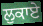
ਲੁਕਾਏ